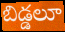
బిడ్డలూ